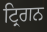
ਟ੍ਰਿਗਨ